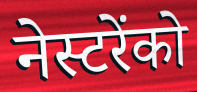
नेस्टरेंको